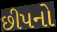
છીપનો